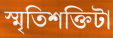
স্মৃতিশক্তিটা